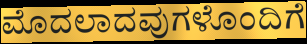
ಮೊದಲಾದವುಗಳೊಂದಿಗೆ